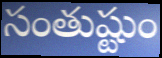
సంతుష్టుం